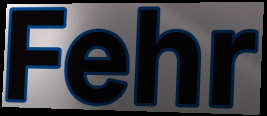
Fehr